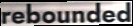
rebounded